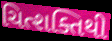
ચિત્શક્તિથી